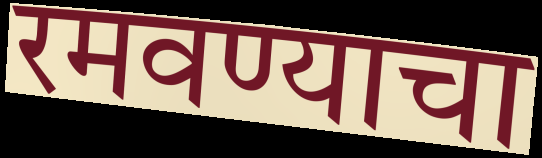
रमवण्याचा